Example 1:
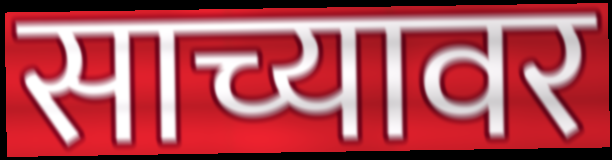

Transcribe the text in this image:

साच्यावर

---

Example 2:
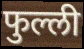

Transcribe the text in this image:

फुल्ली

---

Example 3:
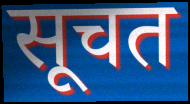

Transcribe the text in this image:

सूचत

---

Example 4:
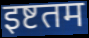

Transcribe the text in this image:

इष्टतम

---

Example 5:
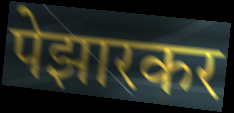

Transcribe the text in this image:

पेझारकर